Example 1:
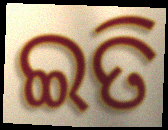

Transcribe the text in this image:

ଇତି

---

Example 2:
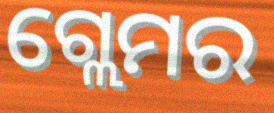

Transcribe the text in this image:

ଗ୍ଲେମର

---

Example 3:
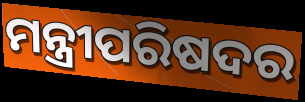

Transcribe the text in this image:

ମନ୍ତ୍ରୀପରିଷଦର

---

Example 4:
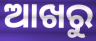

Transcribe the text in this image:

ଆଖରୁ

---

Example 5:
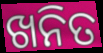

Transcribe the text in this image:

ଖନିତ